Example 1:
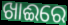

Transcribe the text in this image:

ଖାଈରେ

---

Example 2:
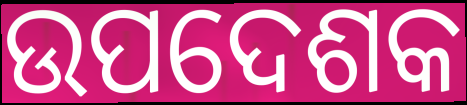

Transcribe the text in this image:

ଉପଦେଶକ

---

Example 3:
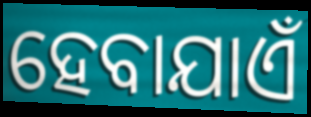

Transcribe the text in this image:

ହେବାଯାଏଁ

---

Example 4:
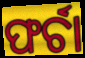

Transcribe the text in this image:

ଫର୍ଚା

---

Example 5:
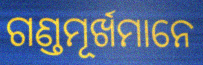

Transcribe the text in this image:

ଗଣ୍ଡମୂର୍ଖମାନେ